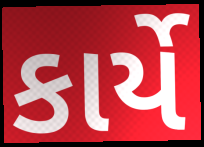
કાર્યે